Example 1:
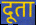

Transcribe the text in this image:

दूता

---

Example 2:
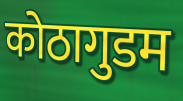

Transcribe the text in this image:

कोठागुडम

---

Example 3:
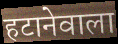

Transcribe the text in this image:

हटानेवाला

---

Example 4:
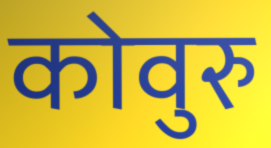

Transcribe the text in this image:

कोवुरु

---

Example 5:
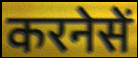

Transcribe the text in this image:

करनेसें